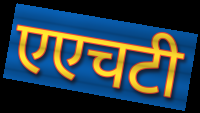
एएचटी